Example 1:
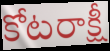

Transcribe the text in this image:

కోటరాక్షీ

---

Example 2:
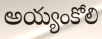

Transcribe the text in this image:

అయ్యంకోలి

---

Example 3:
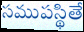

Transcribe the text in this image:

సముపస్థితే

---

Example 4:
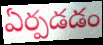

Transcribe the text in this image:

ఏర్పడడం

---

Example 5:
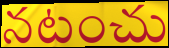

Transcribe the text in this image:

నటంచు